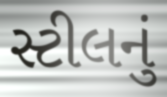
સ્ટીલનું